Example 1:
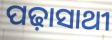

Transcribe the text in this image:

ପଢ଼ାସାଥୀ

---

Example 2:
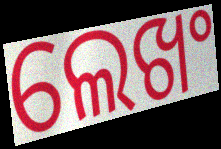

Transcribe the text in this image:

ଲେଖଂ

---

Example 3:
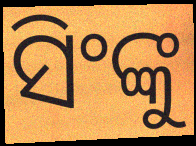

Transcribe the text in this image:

ସିଂଙ୍କୁ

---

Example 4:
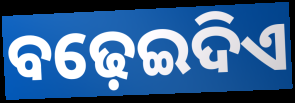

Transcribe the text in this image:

ବଢ଼େଇଦିଏ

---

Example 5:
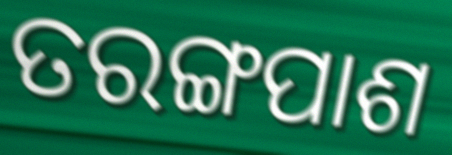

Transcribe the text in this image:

ତରଙ୍ଗପାଶ